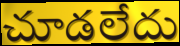
చూడలేదు